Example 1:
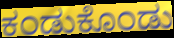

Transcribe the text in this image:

ಕಂಡುಕೊಂಡು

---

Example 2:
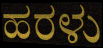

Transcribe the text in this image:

ಹರಳು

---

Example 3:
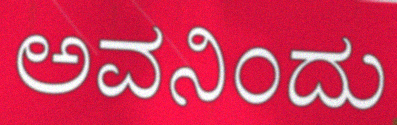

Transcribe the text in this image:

ಅವನಿಂದು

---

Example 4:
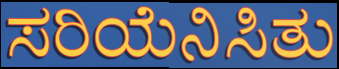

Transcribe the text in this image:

ಸರಿಯೆನಿಸಿತು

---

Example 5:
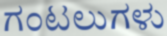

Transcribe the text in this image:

ಗಂಟಲುಗಳು